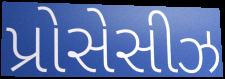
પ્રોસેસીઝ